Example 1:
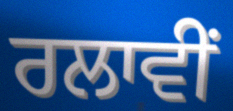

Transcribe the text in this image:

ਰਲਾਵੀਂ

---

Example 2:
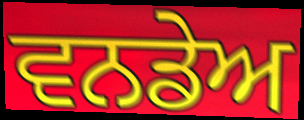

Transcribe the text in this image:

ਵਨਡੇਅ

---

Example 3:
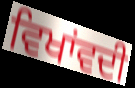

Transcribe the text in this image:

ਵਿਖਾਂਵਦੀ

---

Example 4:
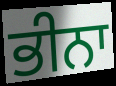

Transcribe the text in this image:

ਭੀਨਾ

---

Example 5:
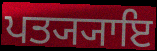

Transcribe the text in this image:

ਪਤ੍ਯ੍ਯਾਇ